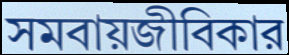
সমবায়জীবিকার